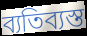
ব্যতিব্যস্ত